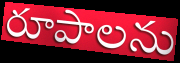
రూపాలను